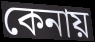
কেনায়